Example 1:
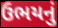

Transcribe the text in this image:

ઉભયનું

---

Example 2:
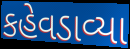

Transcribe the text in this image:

કહેવડાવ્યા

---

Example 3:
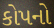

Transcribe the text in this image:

કોપનો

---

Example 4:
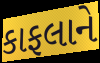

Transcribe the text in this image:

કાફલાને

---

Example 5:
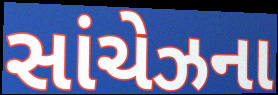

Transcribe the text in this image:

સાંચેઝના